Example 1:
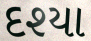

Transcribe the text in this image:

દશ્યા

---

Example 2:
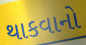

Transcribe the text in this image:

થાકવાનો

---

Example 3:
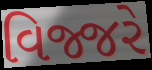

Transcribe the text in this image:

વિજ્જરે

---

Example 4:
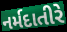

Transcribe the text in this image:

નર્મદાતીરે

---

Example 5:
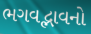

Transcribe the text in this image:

ભગવદ્ભાવનો